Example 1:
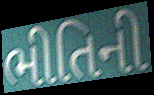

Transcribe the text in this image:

ભીતિની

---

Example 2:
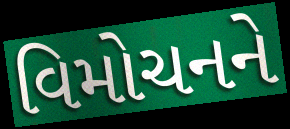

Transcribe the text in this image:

વિમોચનને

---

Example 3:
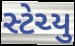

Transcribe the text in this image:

સ્ટેચ્યુ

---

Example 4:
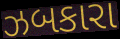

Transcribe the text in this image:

ઝબકારા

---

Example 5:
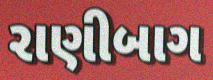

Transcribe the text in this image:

રાણીબાગ